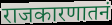
राजकारणातनं